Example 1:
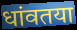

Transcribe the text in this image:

धांवतया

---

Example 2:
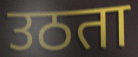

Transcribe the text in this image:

उठता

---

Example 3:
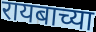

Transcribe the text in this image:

रायबाच्या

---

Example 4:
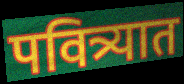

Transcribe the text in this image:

पवित्र्यात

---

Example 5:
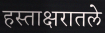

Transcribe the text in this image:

हस्ताक्षरातले